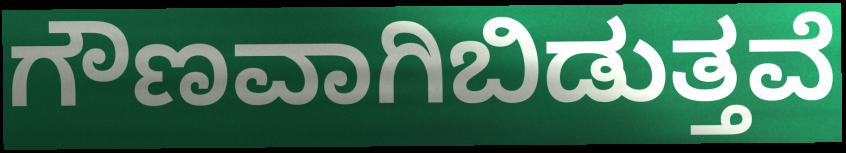
ಗೌಣವಾಗಿಬಿಡುತ್ತವೆ